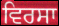
ਵਿਰਸਾ